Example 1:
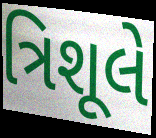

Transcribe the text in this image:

ત્રિશૂલે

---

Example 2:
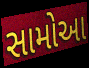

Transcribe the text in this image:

સામોઆ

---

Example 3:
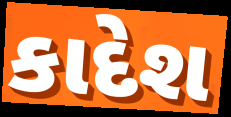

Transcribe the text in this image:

કાદેશ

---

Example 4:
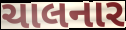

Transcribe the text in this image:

ચાલનાર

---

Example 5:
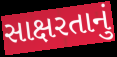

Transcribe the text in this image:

સાક્ષરતાનું